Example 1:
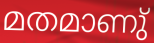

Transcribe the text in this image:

മതമാണു്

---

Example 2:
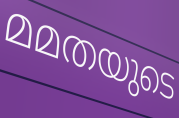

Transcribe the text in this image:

മമതയുടെ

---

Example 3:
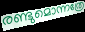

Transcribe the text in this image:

രണ്ടുമൊന്നത്രേ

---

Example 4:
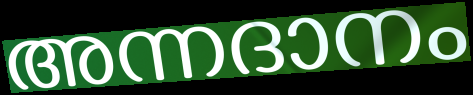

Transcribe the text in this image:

അന്നദാനം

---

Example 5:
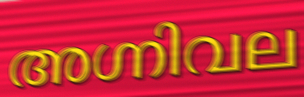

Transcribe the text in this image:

അഗ്നിവല